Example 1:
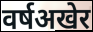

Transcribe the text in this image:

वर्षअखेर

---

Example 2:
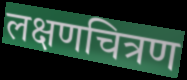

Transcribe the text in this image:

लक्षणचित्रण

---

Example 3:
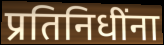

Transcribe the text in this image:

प्रतिनिधींना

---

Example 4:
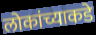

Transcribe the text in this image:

लोकांच्याकडे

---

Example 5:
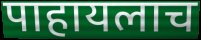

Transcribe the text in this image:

पाहायलाच